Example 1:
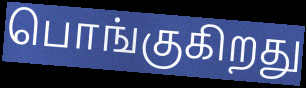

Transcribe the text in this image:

பொங்குகிறது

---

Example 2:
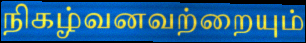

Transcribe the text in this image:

நிகழ்வனவற்றையும்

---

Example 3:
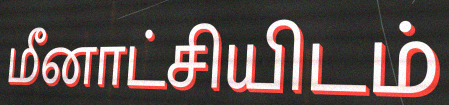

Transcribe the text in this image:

மீனாட்சியிடம்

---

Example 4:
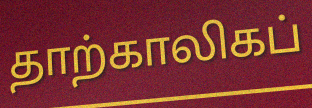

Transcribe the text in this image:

தாற்காலிகப்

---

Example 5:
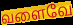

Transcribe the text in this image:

வளைவே